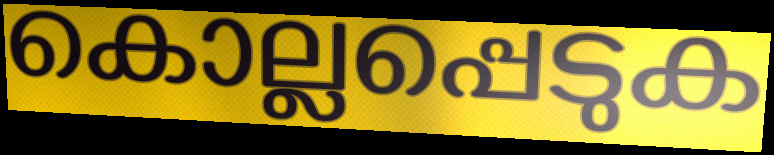
കൊല്ലപ്പെടുക